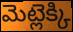
మెట్లెక్కి